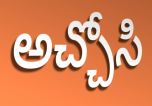
అచ్చోసి